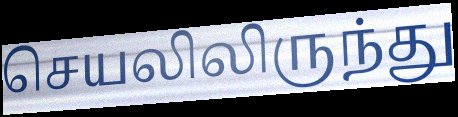
செயலிலிருந்து